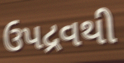
ઉપદ્રવથી